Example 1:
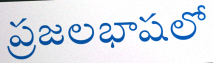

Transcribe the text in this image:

ప్రజలభాషలో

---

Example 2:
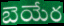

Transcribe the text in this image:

బెయేర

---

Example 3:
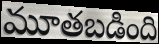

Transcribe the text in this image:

మూతబడింది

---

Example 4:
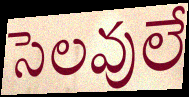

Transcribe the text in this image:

సెలవులే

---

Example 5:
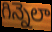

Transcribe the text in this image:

గిన్నెలా